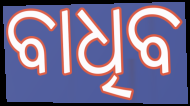
ବାଧିବ